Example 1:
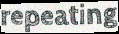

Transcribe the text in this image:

repeating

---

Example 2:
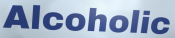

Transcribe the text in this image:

Alcoholic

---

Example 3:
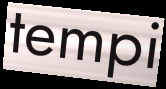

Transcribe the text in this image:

tempi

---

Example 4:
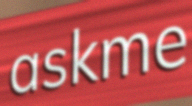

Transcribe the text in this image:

askme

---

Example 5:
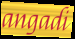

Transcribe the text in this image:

angadi